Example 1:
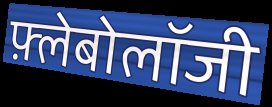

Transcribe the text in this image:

फ़्लेबोलॉजी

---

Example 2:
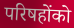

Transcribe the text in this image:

परिषहोंको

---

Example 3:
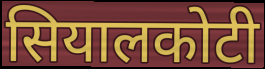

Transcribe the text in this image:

सियालकोटी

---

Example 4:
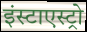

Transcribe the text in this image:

इंस्टाएस्ट्रो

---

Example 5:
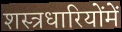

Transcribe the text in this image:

शस्त्रधारियोंमें